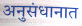
अनुसंधानात